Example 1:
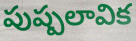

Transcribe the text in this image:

పుష్పలావిక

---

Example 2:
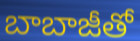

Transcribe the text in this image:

బాబాజీతో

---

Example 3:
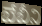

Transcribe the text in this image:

బేబీని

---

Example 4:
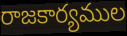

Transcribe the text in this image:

రాజకార్యముల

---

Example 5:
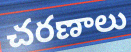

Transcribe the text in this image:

చరణాలు